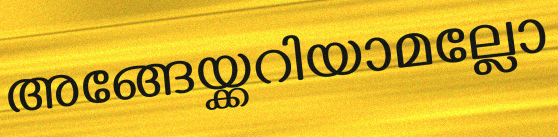
അങ്ങേയ്ക്കറിയാമല്ലോ